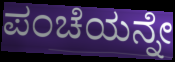
ಪಂಚೆಯನ್ನೇ